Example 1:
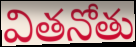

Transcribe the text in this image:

వితనోతు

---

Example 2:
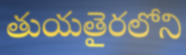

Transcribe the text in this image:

తుయతైరలోని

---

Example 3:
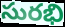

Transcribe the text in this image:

సురభి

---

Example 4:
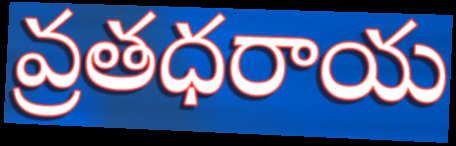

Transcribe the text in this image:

వ్రతధరాయ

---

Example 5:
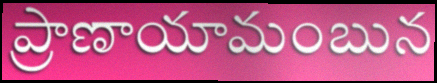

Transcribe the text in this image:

ప్రాణాయామంబున